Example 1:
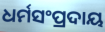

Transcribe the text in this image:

ଧର୍ମସଂପ୍ରଦାୟ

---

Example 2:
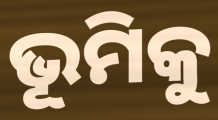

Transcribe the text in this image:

ଭୂମିକୁ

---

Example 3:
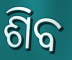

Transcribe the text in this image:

ଶିବ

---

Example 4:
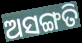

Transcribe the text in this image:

ଅସଙ୍ଗତି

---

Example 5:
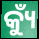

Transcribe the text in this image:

କ୍ୟୁଁ